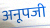
अनूपजी